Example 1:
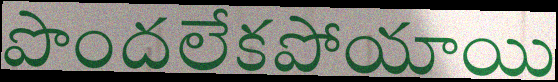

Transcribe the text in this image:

పొందలేకపోయాయి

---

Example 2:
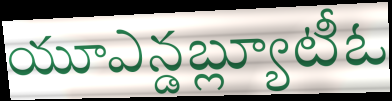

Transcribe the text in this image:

యూఎన్డబ్ల్యూటీఓ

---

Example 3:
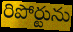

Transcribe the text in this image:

రిపోర్టును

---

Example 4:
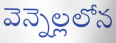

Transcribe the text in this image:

వెన్నెల్లలోన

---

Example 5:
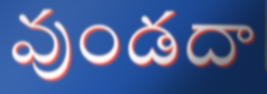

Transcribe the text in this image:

వుండదా